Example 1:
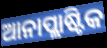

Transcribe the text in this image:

ଆନାପ୍ଲାଷ୍ଟିକ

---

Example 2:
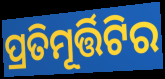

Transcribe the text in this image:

ପ୍ରତିମୂର୍ତ୍ତିଟିର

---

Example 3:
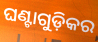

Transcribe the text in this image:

ଘଣ୍ଟାଗୁଡ଼ିକର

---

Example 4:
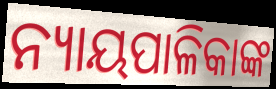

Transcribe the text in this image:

ନ୍ୟାୟପାଳିକାଙ୍କ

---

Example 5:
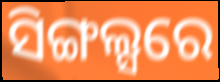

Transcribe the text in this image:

ସିଙ୍ଗଲ୍ସରେ